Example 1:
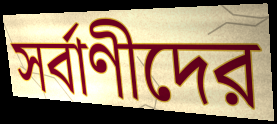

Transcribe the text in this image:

সর্বাণীদের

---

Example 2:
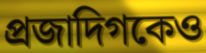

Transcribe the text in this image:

প্রজাদিগকেও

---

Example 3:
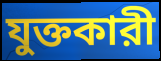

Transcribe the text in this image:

যুক্তকারী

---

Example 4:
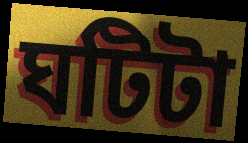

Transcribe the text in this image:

ঘটিটা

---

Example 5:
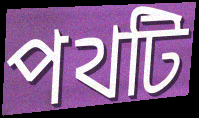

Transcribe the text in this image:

পথটি